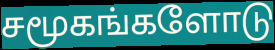
சமூகங்களோடு